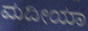
ಮದೀಯಾ